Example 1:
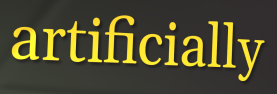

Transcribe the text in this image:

artificially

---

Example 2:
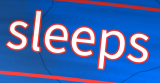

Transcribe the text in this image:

sleeps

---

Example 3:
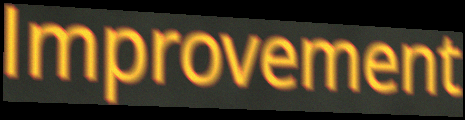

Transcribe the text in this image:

Improvement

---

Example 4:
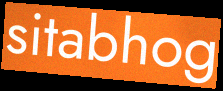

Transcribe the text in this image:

sitabhog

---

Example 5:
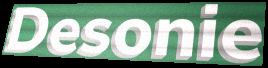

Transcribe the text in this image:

Desonie